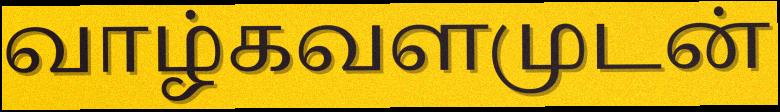
வாழ்கவளமுடன்